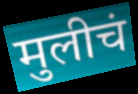
मुलीचं